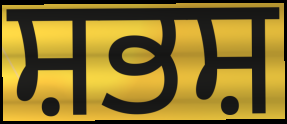
ਸ਼ਭਸ਼